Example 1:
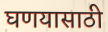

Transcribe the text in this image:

घणयासाठी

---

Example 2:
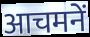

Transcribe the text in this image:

आचमनें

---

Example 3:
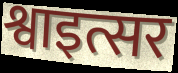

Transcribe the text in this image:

श्वाइत्सर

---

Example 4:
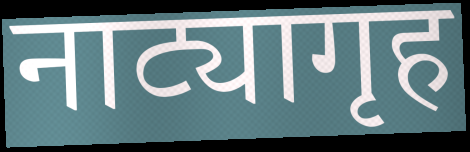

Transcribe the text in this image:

नाट्यागृह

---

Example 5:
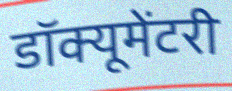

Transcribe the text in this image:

डॉक्यूमेंटरी